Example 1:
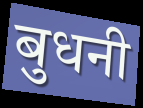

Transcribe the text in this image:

बुधनी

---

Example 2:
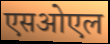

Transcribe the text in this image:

एसओएल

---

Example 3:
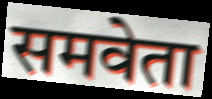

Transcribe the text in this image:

समवेता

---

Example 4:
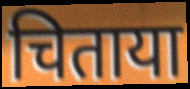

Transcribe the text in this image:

चिताया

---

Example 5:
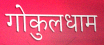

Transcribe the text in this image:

गोकुलधाम